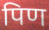
पिण